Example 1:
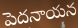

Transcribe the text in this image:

పెదనాయన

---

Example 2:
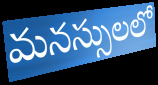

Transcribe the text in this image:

మనస్సులలో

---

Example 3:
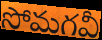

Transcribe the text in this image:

సోమగవీ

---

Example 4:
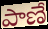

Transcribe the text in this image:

పాణే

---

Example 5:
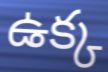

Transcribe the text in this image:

ఉక్క